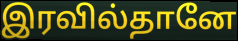
இரவில்தானே